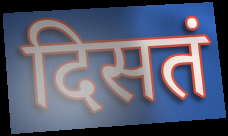
दिसतं